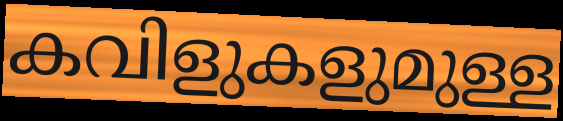
കവിളുകളുമുള്ള